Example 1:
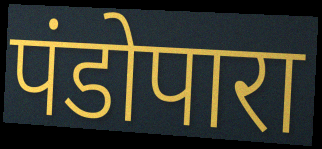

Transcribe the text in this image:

पंडोपारा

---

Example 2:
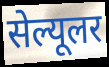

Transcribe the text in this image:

सेल्यूलर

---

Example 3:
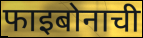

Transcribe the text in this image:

फाइबोनाची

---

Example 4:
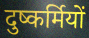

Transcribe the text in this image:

दुष्कर्मियों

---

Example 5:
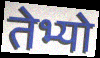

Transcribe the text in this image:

तेभ्यो